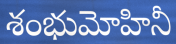
శంభుమోహినీ